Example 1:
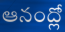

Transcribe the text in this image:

ఆనంద్లో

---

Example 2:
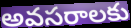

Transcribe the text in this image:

అవసరాలకు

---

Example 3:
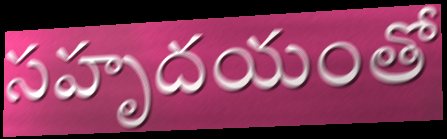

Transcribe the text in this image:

సహృదయంతో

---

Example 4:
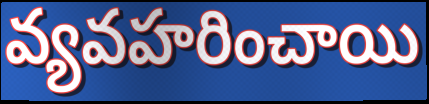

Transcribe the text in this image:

వ్యవహరించాయి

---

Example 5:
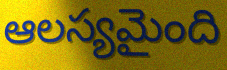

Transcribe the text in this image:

ఆలస్యమైంది